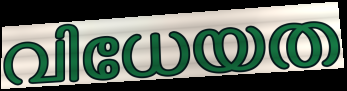
വിധേയത